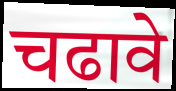
चढावे